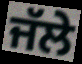
ਜੱਲੇ